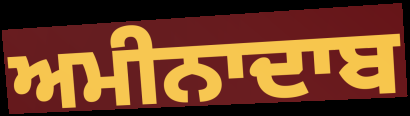
ਅਮੀਨਾਦਾਬ